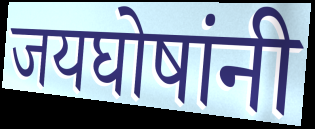
जयघोषांनी